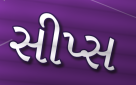
સીપ્સ